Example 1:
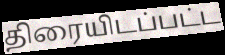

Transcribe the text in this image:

திரையிடப்பட்ட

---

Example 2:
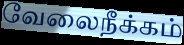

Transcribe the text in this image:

வேலைநீக்கம்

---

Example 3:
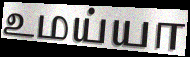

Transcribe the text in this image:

உமய்யா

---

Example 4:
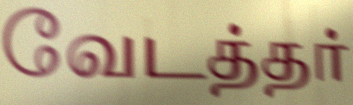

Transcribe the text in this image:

வேடத்தர்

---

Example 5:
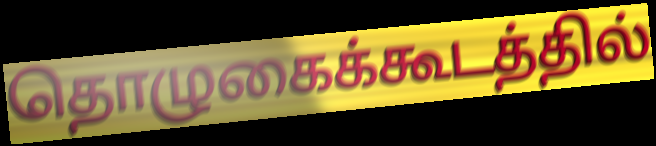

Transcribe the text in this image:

தொழுகைக்கூடத்தில்